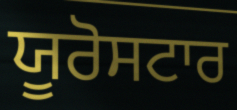
ਯੂਰੋਸਟਾਰ